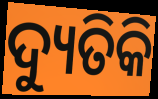
ଦ୍ୟୁତିକି